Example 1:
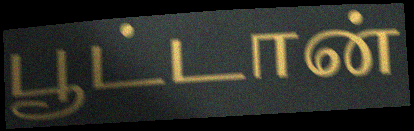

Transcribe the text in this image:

பூட்டான்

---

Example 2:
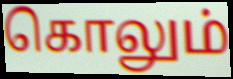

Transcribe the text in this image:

கொலும்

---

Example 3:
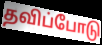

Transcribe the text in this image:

தவிப்போடு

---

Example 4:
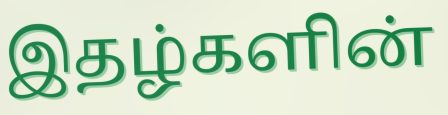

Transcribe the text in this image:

இதழ்களின்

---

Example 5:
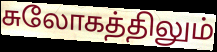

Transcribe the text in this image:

சுலோகத்திலும்